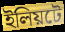
ইলিয়টে